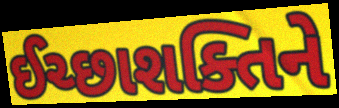
ઈચ્છાશક્તિને